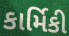
કાર્મિકી